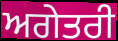
ਅਗੇਤਰੀ